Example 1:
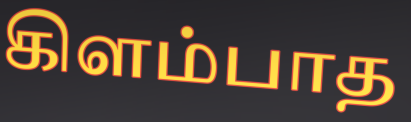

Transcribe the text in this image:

கிளம்பாத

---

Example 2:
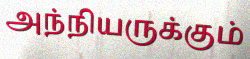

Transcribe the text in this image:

அந்நியருக்கும்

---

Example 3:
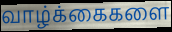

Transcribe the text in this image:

வாழ்க்கைகளை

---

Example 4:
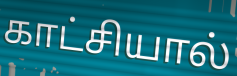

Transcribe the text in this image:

காட்சியால்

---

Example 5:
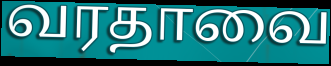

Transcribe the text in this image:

வரதாவை